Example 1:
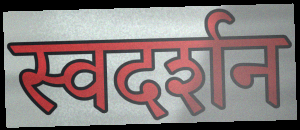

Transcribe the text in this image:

स्वदर्शन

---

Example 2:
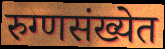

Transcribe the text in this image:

रुग्णसंख्येत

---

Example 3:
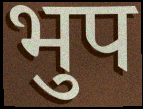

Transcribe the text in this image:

भुप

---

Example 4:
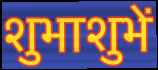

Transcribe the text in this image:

शुभाशुभें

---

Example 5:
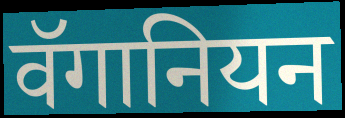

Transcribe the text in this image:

वॅगानियन